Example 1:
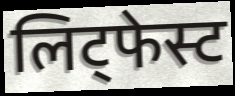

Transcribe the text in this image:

लिट्फेस्ट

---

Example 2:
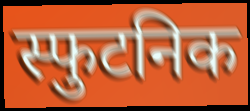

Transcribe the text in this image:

स्फुटनिक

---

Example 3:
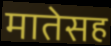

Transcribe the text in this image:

मातेसह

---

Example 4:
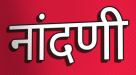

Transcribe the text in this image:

नांदणी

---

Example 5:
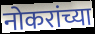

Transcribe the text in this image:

नोकरांच्या